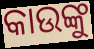
କାଉଙ୍କୁ